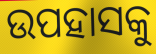
ଉପହାସକୁ